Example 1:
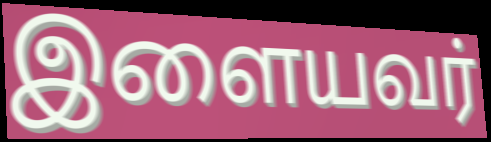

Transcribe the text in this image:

இளையவர்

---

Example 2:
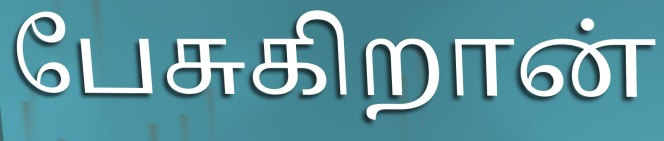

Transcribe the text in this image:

பேசுகிறான்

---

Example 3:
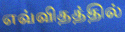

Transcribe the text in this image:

எவ்விதத்தில்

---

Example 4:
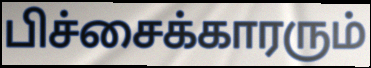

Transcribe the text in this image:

பிச்சைக்காரரும்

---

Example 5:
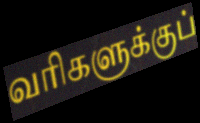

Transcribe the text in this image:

வரிகளுக்குப்